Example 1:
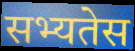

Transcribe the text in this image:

सभ्यतेस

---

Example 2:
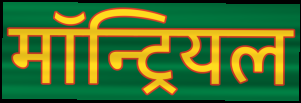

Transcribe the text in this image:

मॉन्ट्रियल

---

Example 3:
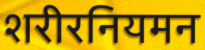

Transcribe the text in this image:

शरीरनियमन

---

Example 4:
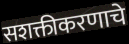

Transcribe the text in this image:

सशक्तीकरणाचे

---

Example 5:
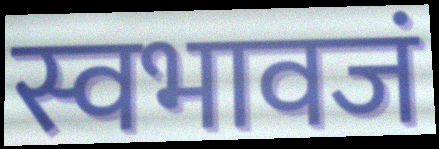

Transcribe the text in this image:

स्वभावजं